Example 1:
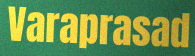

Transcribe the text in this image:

Varaprasad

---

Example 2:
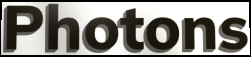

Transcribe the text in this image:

Photons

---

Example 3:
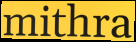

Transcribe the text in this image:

mithra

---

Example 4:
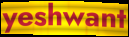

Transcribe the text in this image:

yeshwant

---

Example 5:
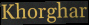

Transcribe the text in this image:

Khorghar